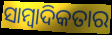
ସାମ୍ୱାଦିକତାର